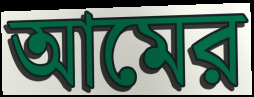
আমের